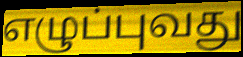
எழுப்புவது